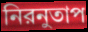
নিরনুতাপ